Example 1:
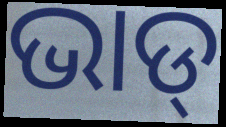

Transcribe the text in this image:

ଭାଡ୍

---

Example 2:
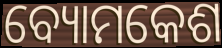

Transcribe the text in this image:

ବ୍ୟୋମକେଶ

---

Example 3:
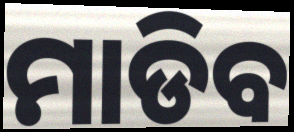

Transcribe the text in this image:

ମାଡିବ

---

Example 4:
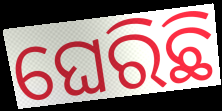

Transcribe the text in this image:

ଘେରିଛି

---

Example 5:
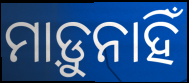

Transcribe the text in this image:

ମାଡ଼ୁନାହିଁ